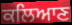
ਕਲਿਆਣ